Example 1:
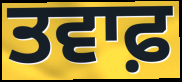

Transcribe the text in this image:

ਤਵਾਫ਼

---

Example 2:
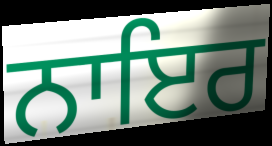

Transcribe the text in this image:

ਨਾਇਰ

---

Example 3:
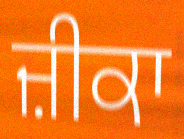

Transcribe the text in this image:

ਜ਼ੀਕਾ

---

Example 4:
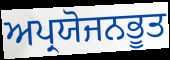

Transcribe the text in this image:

ਅਪ੍ਰਯੋਜਨਭੂਤ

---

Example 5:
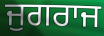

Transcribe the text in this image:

ਜੁਗਰਾਜ